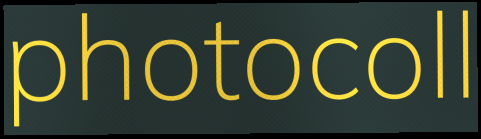
photocoll